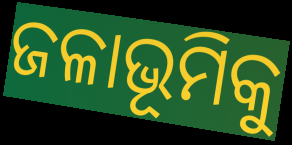
ଜଳାଭୂମିକୁ